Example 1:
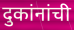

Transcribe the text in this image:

दुकांनांची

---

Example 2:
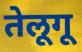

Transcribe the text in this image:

तेलूगू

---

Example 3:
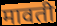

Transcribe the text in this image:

मावती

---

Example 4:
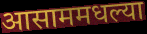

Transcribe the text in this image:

आसाममधल्या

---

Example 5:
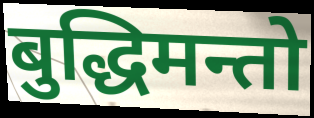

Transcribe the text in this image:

बुद्धिमन्तो